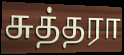
சுத்தரா